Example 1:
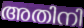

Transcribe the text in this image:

അതിനി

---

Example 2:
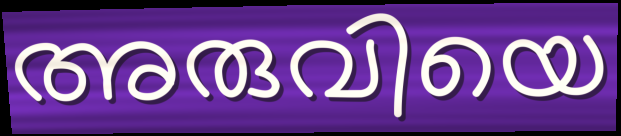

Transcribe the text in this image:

അരുവിയെ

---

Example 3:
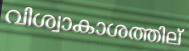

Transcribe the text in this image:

വിശ്വാകാശത്തില്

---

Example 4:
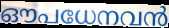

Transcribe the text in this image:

ഔപധേനവൻ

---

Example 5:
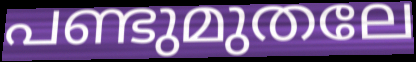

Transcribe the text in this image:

പണ്ടുമുതലേ